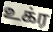
உக்ர